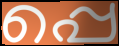
പ്പെ